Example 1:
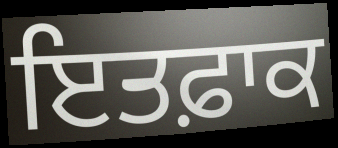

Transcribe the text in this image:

ਇਤਫ਼ਾਕ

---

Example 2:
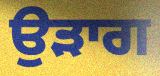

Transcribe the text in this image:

ਉੜਾਗ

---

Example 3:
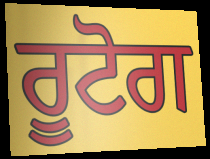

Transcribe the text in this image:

ਰੂਟੋਗ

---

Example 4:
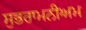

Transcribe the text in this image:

ਸੁਭਰਾਮਨੀਅਮ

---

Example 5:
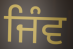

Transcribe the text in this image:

ਜਿੰਵ